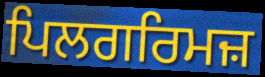
ਪਿਲਗਰਿਮਜ਼